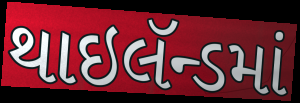
થાઇલૅન્ડમાં